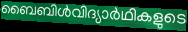
ബൈബിൾവിദ്യാർഥികളുടെ